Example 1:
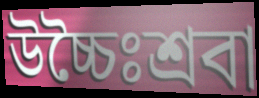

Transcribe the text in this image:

উচ্চৈঃশ্রবা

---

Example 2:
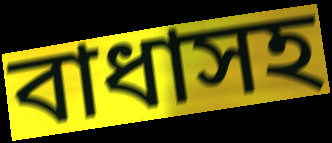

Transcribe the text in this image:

বাধাসহ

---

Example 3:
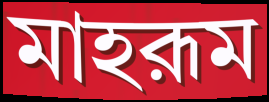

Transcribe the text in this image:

মাহরূম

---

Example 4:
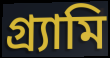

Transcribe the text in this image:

গ্র্যামি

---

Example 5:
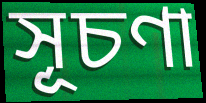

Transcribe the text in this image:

সূচণা